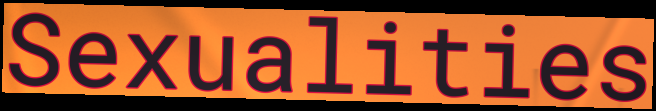
Sexualities